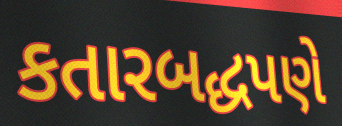
કતારબદ્ધપણે